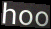
hoo